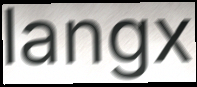
langx